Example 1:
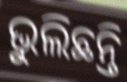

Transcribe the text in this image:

ଭୁଲିଛନ୍ତି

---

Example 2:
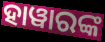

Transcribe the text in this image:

ହାୱାରଙ୍କ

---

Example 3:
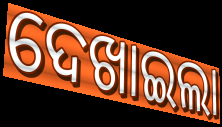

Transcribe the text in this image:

ଦେଖାଇଲା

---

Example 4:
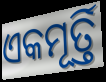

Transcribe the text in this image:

ଏକମୂର୍ତ୍ତି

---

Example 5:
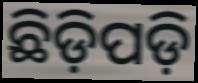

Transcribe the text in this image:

ଛିଡ଼ିପଡ଼ି